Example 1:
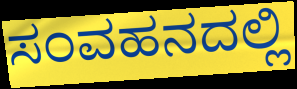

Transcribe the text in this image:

ಸಂವಹನದಲ್ಲಿ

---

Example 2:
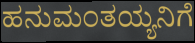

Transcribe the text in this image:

ಹನುಮಂತಯ್ಯನಿಗೆ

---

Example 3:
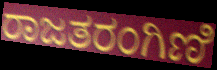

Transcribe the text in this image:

ರಾಜತರಂಗಿಣಿ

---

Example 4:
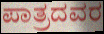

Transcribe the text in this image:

ಪಾತ್ರದವರ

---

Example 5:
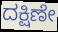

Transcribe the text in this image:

ದಕ್ಷಿಣೇ